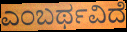
ಎಂಬರ್ಥವಿದೆ